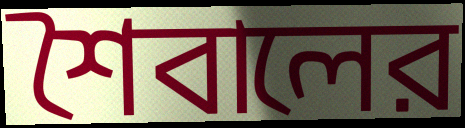
শৈবালের